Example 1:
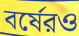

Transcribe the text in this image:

বর্ষেরও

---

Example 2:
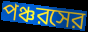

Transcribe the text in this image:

পঞ্চরসের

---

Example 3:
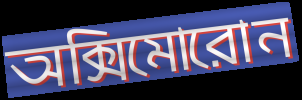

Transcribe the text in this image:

অক্সিমোরোন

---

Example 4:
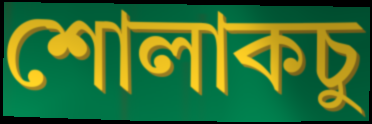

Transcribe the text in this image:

শোলাকচু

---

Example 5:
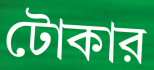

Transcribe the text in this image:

টোকার